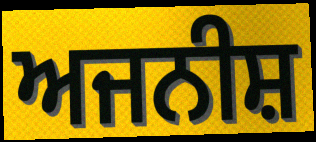
ਅਜਨੀਸ਼